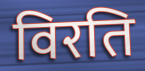
विरति